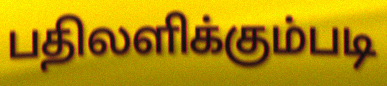
பதிலளிக்கும்படி